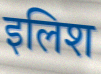
इलिश